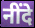
नींदे